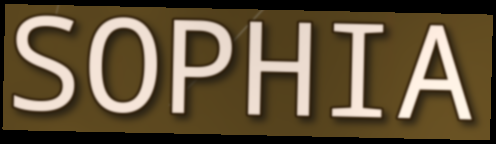
SOPHIA